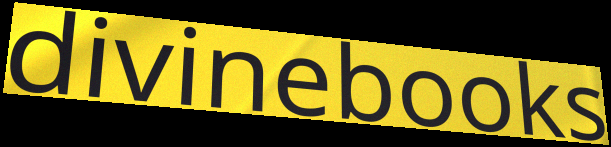
divinebooks